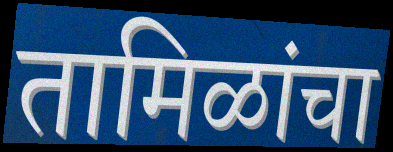
तामिळांचा